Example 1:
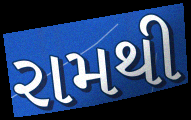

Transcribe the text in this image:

રામથી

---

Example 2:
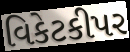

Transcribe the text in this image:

વિકેટકીપર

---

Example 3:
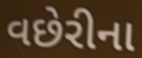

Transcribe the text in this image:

વછેરીના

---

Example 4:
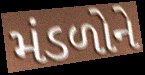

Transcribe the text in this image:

મંડળોને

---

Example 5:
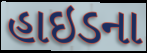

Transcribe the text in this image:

હાઇડના